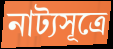
নাট্যসূত্রে